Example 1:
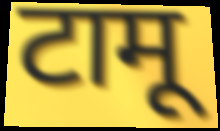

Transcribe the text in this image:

टामू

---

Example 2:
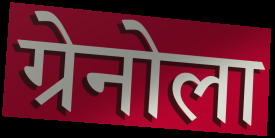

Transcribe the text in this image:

ग्रेनोला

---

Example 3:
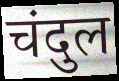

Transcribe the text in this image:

चंदुल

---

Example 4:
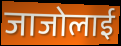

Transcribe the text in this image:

जाजोलाई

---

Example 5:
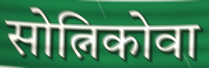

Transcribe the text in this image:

सोत्निकोवा